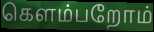
கெளம்பறோம்